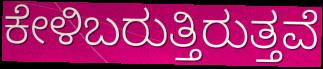
ಕೇಳಿಬರುತ್ತಿರುತ್ತವೆ